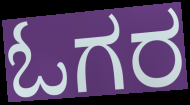
ಓಗರ